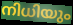
നിധിയും